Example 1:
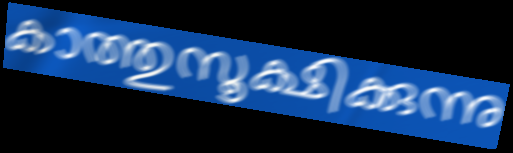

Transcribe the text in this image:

കാത്തുസൂക്ഷിക്കുന്നു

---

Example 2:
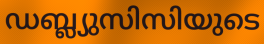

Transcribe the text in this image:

ഡബ്ല്യുസിസിയുടെ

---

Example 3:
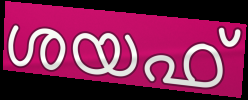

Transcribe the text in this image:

ശയഫ്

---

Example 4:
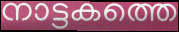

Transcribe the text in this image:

നാട്ടകത്തെ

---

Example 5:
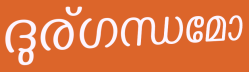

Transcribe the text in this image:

ദുര്ഗന്ധമോ